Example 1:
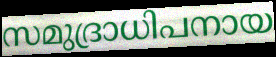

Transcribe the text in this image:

സമുദ്രാധിപനായ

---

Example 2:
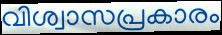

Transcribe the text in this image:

വിശ്വാസപ്രകാരം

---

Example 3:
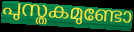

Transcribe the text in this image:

പുസ്തകമുണ്ടോ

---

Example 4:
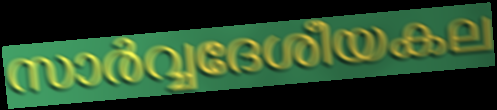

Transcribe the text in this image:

സാർവ്വദേശീയകല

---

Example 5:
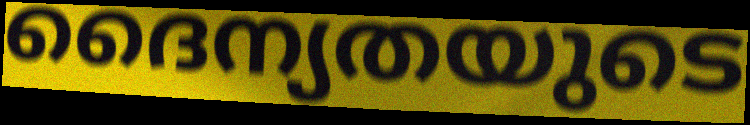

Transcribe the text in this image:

ദൈന്യതയുടെ